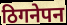
ठिगनेपन